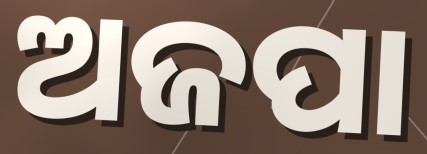
ଅଜପା